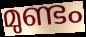
മുണ്ടം